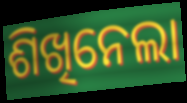
ଶିଖିନେଲା